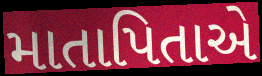
માતાપિતાએ